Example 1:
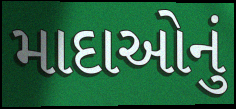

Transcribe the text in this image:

માદાઓનું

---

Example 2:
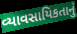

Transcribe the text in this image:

વ્યાવસાયિકતાનું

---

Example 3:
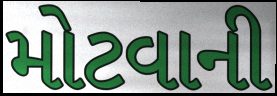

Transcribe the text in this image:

મોટવાની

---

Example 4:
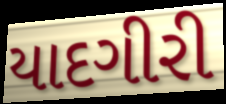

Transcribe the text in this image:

યાદગીરી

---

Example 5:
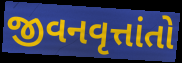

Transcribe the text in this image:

જીવનવૃત્તાંતો